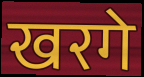
खरगे